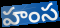
హంస